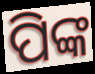
ପିଙ୍କ